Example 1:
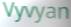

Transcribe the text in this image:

Vyvyan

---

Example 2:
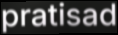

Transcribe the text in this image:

pratisad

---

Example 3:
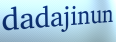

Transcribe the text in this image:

dadajinun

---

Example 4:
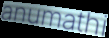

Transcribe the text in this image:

anumathi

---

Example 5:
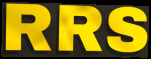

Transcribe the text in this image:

RRS